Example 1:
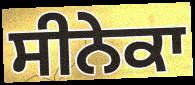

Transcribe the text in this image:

ਸੀਨੇਕਾ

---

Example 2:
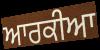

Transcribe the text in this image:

ਆਰਕੀਆ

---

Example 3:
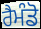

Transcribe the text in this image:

ਰੈਮੰਡੋ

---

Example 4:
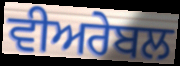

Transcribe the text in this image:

ਵੀਅਰੇਬਲ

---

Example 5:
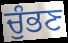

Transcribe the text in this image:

ਚੁੰਭਣ